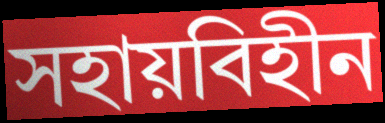
সহায়বিহীন